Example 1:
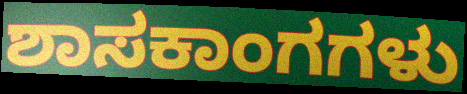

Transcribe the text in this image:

ಶಾಸಕಾಂಗಗಳು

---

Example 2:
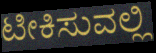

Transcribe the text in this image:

ಟೀಕಿಸುವಲ್ಲಿ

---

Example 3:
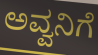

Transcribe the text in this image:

ಅವ್ವನಿಗೆ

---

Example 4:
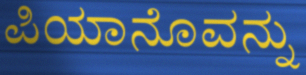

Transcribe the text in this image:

ಪಿಯಾನೊವನ್ನು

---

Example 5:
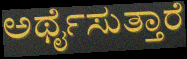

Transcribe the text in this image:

ಅರ್ಥೈಸುತ್ತಾರೆ